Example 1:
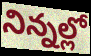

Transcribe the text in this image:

నిన్నల్లో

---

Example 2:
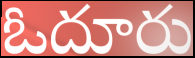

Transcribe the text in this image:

ఓదూరు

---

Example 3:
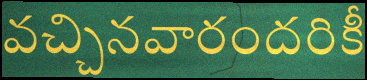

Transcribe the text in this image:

వచ్చినవారందరికీ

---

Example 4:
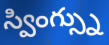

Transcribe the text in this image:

స్వింగ్స్ను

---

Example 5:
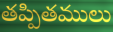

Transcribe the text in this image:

తప్పితములు